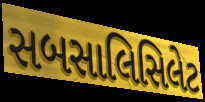
સબસાલિસિલેટ